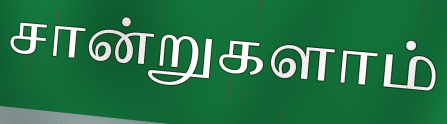
சான்றுகளாம்